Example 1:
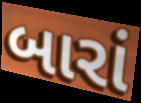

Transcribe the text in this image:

બારાં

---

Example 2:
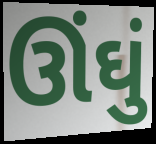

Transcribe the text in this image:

ઊંઘું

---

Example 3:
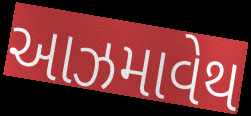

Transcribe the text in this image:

આઝમાવેથ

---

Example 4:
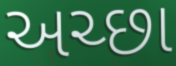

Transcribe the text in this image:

અચ્છા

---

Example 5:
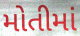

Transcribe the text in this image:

મોતીમાં